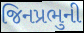
જિનપ્રભુની